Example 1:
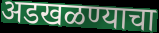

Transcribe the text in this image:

अडखळण्याचा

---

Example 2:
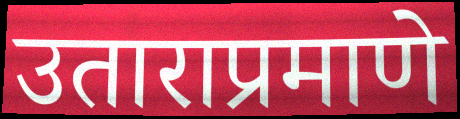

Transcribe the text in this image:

उताराप्रमाणे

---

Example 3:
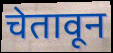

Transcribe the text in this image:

चेतावून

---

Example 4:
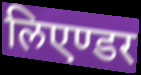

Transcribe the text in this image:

लिएण्डर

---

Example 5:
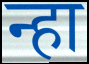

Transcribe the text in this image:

न्हा